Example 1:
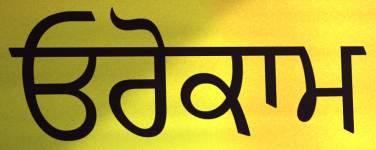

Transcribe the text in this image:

ਓਰੋਕਾਮ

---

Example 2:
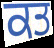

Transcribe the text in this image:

ਕਤ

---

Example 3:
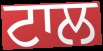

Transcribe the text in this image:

ਟਾਲ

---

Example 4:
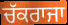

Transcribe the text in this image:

ਚੱਕਰਾਜਾ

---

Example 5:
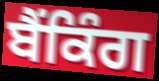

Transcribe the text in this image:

ਬੈਂਕਿੰਗ